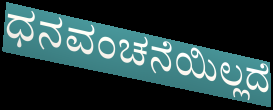
ಧನವಂಚನೆಯಿಲ್ಲದೆ